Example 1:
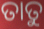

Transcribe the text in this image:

ତାତୁ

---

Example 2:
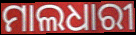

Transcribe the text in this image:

ମାଲଧାରୀ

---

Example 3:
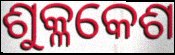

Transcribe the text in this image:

ଶୁକ୍ଳକେଶ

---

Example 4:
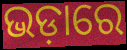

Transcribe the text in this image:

ଭଡ଼ାରେ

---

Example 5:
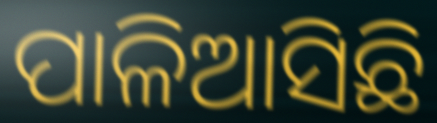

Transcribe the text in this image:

ପାଳିଆସିଛି